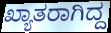
ಖ್ಯಾತರಾಗಿದ್ದ